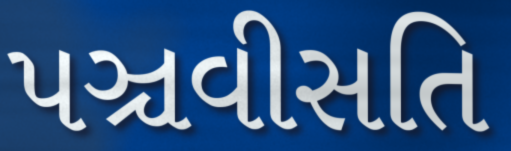
પઞ્ચવીસતિ